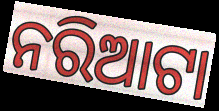
ନରିଆଟା